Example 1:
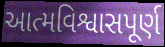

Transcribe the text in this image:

આત્મવિશ્વાસપૂર્ણ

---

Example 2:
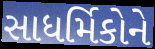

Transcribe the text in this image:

સાધર્મિકોને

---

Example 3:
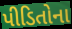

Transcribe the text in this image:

પીડિતોના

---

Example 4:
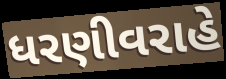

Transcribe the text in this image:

ધરણીવરાહે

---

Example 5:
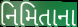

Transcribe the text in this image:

નિમિતાના